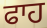
ਫਾਹ